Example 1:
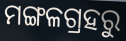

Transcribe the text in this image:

ମଙ୍ଗଳଗ୍ରହରୁ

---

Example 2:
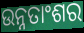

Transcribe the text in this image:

ଉନ୍ନତାଂଶର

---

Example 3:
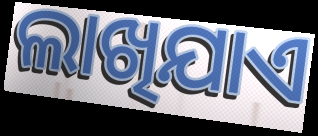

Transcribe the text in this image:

ଲାଖିଯାଏ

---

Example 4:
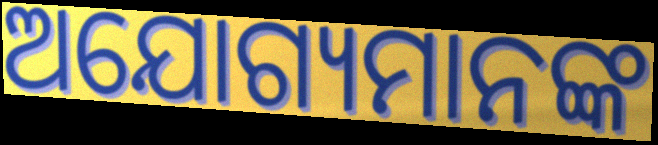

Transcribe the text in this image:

ଅଯୋଗ୍ୟମାନଙ୍କ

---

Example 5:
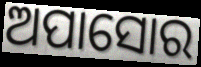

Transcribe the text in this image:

ଅପାସୋର